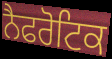
ਨੈਫਰੋਟਿਕ